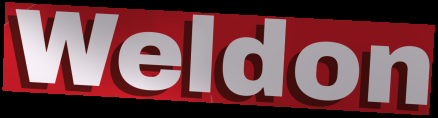
Weldon